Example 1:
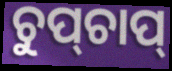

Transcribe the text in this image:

ଚୁପ୍‌ଚାପ୍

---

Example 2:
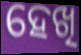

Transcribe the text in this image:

ହେଖି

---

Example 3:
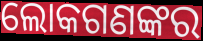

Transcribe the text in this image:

ଲୋକଗଣଙ୍କର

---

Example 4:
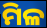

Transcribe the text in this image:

ମିଳ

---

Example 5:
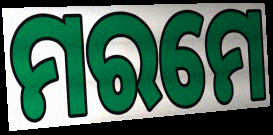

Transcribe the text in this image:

ମରମେ